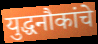
युद्धनौकांचे